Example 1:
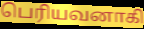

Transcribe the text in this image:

பெரியவனாகி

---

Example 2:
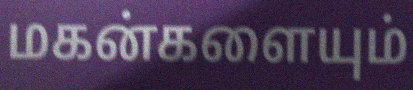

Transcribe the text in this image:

மகன்களையும்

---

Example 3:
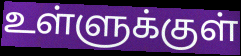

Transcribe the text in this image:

உள்ளுக்குள்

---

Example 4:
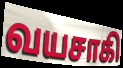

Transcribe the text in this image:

வயசாகி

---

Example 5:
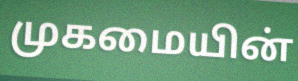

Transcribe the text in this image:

முகமையின்